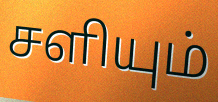
சளியும்